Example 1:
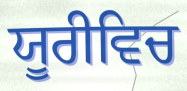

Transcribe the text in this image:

ਯੂਰੀਵਿਚ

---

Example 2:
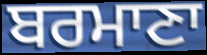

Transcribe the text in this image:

ਬਰਮਾਣਾ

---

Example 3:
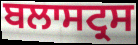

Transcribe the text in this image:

ਬਲਾਸਟ੍ਰਸ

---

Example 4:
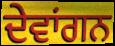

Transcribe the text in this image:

ਦੇਵਾਂਗਨ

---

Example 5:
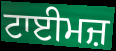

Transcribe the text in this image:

ਟਾਈਮਜ਼